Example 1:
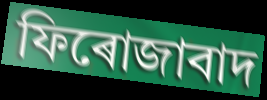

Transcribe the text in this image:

ফিৰোজাবাদ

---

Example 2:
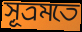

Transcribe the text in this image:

সূত্ৰমতে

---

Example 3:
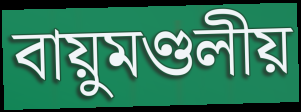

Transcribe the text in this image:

বায়ুমণ্ডলীয়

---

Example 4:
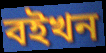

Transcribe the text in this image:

বইখন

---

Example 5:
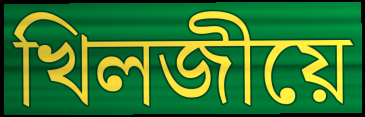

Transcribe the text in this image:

খিলজীয়ে